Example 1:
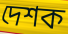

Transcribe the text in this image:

দেশক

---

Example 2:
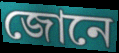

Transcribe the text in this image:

জোনে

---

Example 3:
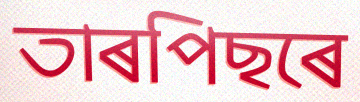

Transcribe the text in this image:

তাৰপিছৰে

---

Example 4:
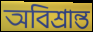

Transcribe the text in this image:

অবিশ্ৰান্ত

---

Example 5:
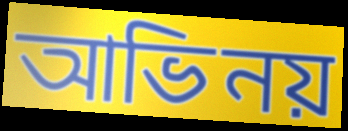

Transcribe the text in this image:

আভিনয়